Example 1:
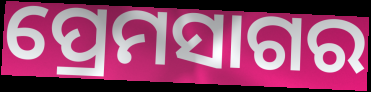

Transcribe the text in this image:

ପ୍ରେମସାଗର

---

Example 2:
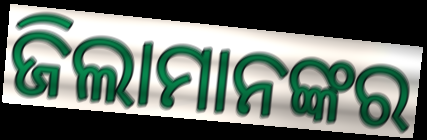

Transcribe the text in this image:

ଜିଲାମାନଙ୍କର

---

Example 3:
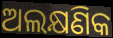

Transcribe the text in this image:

ଅଲକ୍ଷଣିକ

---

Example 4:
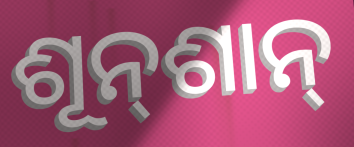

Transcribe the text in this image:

ଶୂନ୍‌ଶାନ୍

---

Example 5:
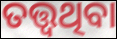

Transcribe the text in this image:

ତତ୍ତ୍ୱଥିବା